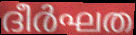
ദീർഘത